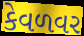
કેવળવર